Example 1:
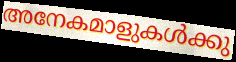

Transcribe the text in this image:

അനേകമാളുകൾക്കു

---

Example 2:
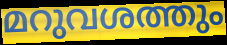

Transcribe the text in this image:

മറുവശത്തും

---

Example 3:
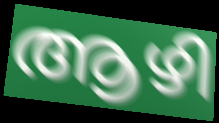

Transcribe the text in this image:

ആഴി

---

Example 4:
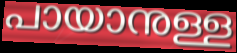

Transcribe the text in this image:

പായാനുള്ള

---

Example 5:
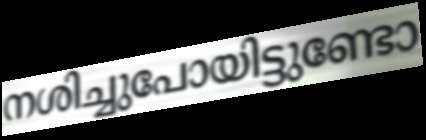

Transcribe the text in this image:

നശിച്ചുപോയിട്ടുണ്ടോ